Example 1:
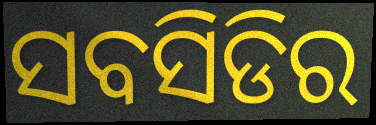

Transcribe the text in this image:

ସବସିଡିର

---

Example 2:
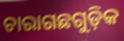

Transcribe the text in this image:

ଚାରାଗଛଗୁଡ଼ିକ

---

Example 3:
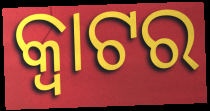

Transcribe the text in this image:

କ୍ୱାଟର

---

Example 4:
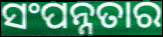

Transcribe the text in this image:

ସଂପନ୍ନତାର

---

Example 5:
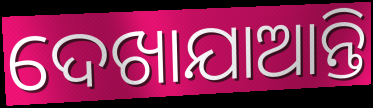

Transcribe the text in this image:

ଦେଖାଯାଆନ୍ତି